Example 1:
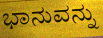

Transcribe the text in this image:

ಭಾನುವನ್ನು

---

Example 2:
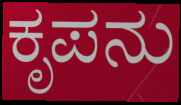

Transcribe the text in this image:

ಕೃಪನು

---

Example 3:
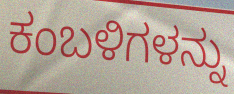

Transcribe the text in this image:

ಕಂಬಳಿಗಳನ್ನು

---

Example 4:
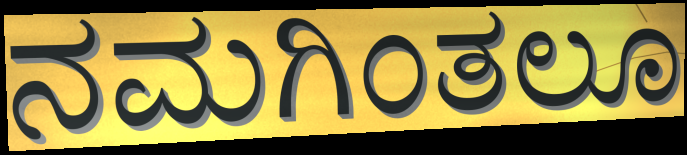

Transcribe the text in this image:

ನಮಗಿಂತಲೂ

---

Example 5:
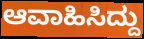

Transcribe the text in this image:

ಆವಾಹಿಸಿದ್ದು